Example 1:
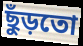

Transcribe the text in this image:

ছুঁড়তো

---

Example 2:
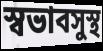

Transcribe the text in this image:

স্বভাবসুস্থ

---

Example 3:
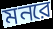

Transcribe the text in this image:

মনরে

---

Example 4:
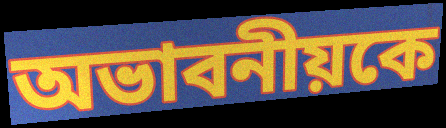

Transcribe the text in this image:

অভাবনীয়কে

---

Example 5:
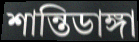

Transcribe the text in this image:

শান্তিডাঙ্গা